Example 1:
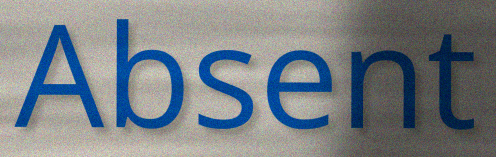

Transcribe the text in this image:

Absent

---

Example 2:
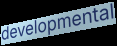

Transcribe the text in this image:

developmental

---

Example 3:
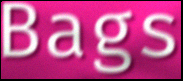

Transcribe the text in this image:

Bags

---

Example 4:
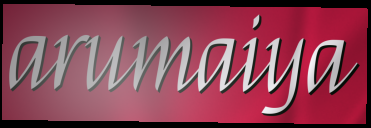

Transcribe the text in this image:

arumaiya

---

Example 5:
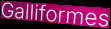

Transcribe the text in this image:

Galliformes